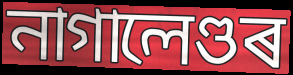
নাগালেণ্ডৰ